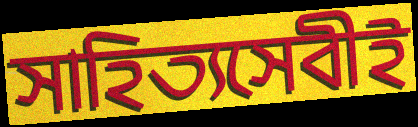
সাহিত্যসেবীই